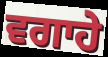
ਵਗਾਹੇ